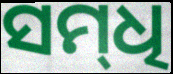
ସମ୍‌ଧି